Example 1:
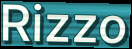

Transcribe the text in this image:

Rizzo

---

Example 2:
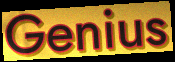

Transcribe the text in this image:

Genius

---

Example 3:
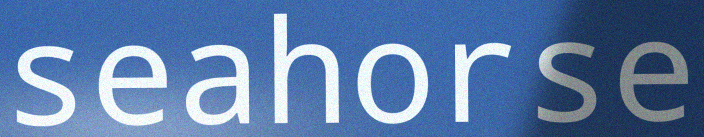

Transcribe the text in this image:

seahorse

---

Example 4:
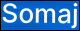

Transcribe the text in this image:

Somaj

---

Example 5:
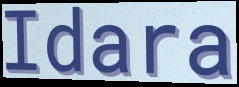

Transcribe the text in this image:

Idara